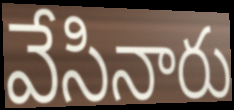
వేసినారు